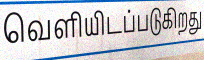
வெளியிடப்படுகிறது